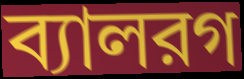
ব্যালরগ